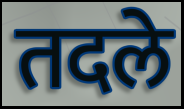
तदले